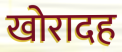
खोरादह